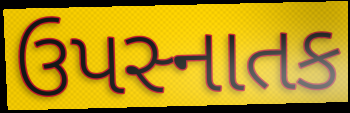
ઉપસ્નાતક